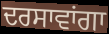
ਦਰਸਾਵਾਂਗਾ